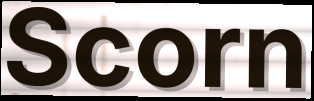
Scorn